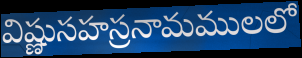
విష్ణుసహస్రనామములలో